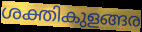
ശക്തികുളങ്ങര